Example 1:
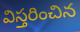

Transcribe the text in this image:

విస్తరించిన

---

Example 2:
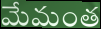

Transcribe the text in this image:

మేమంత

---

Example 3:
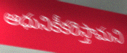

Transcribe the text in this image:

ఆధునికీకరిస్తామని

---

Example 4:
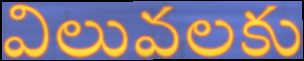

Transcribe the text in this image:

విలువలకు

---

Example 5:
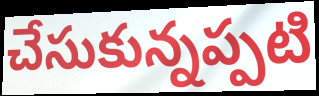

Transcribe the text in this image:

చేసుకున్నప్పటి